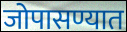
जोपासण्यात